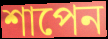
শাপেন